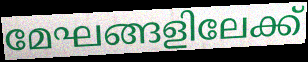
മേഘങ്ങളിലേക്ക്